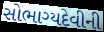
સોભાગ્યદેવીની